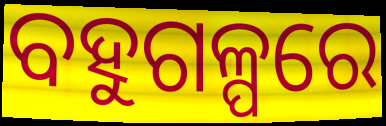
ବହୁଗଳ୍ପରେ